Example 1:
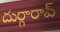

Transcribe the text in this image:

దుర్గారావ్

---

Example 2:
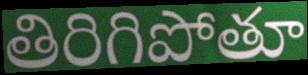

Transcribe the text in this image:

తిరిగిపోతూ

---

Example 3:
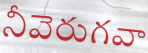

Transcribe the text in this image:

నీవెరుగవా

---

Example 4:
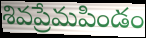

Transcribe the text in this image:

శివప్రేమపిండం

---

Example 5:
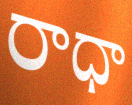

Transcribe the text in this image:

రాధా